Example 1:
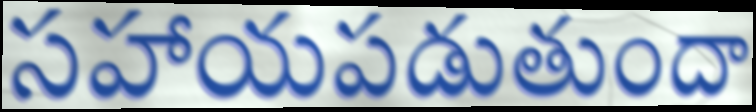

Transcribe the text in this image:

సహాయపడుతుందా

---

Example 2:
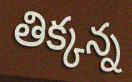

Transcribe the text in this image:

తిక్కన్న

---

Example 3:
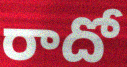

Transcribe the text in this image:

రాదో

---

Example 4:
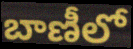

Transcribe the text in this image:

బాణీలో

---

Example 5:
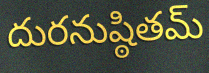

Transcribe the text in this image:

దురనుష్ఠితమ్